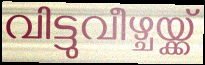
വിട്ടുവീഴ്ചയ്ക്ക്